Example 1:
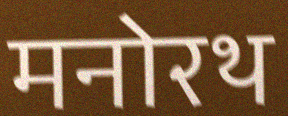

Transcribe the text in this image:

मनोरथ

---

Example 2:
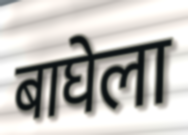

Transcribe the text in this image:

बाघेला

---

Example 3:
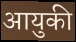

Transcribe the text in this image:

आयुकी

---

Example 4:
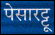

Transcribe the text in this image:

पेसारट्टू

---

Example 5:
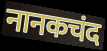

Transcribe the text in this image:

नानकचंद